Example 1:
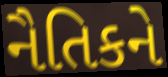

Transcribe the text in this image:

નૈતિકને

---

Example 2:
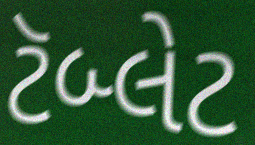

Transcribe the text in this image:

ટૅબ્લેટ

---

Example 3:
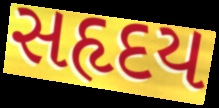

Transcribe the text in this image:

સહૃદય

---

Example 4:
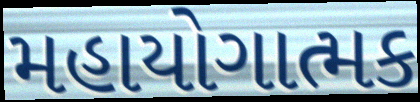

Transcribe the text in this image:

મહાયોગાત્મક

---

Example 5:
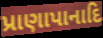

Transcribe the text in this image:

પ્રાણાપાનાદિ